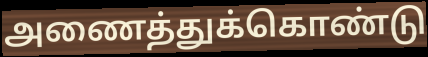
அணைத்துக்கொண்டு